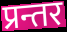
प्रन्तर